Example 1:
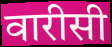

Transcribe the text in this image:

वारीसी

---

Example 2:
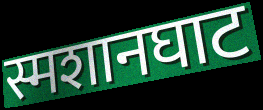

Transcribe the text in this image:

स्मशानघाट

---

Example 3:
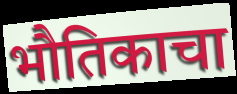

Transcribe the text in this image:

भौतिकाचा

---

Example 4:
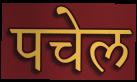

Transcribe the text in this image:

पचेल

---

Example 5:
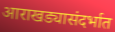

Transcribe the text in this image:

आराखड्यासंदर्भात